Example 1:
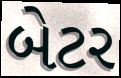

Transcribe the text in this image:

બેટર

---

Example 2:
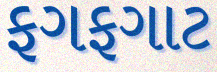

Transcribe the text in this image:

ફગફગાટ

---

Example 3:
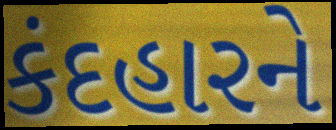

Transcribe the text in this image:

કંદહારને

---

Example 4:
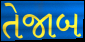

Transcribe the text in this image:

તેજાબ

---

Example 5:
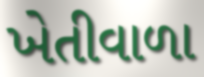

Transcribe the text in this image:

ખેતીવાળા